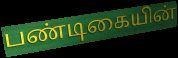
பண்டிகையின்